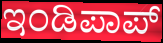
ಇಂಡಿಪಾಪ್